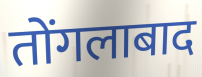
तोंगलाबाद